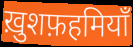
ख़ुशफ़हमियाँ